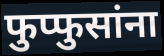
फुप्फुसांना